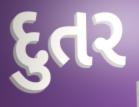
દુતર